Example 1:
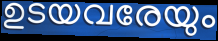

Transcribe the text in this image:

ഉടയവരേയും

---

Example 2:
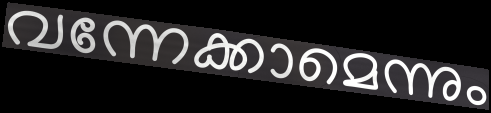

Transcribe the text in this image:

വന്നേക്കാമെന്നും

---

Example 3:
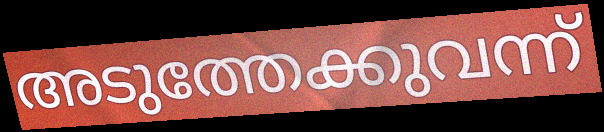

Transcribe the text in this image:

അടുത്തേക്കുവന്ന്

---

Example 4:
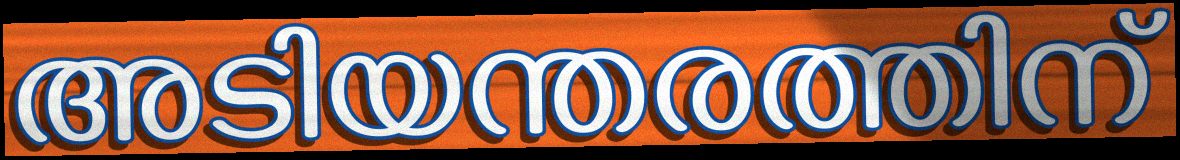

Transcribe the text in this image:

അടിയന്തരത്തിന്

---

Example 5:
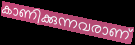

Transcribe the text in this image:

കാണിക്കുന്നവരാണ്